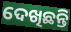
ଦେଖିଛନ୍ତି